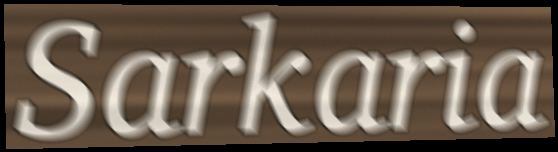
Sarkaria